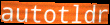
autotldr